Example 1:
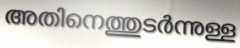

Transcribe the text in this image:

അതിനെത്തുടർന്നുള്ള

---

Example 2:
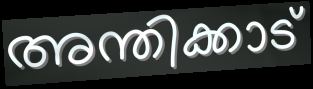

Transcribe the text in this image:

അന്തിക്കാട്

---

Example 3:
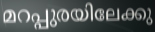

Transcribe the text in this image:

മറപ്പുരയിലേക്കു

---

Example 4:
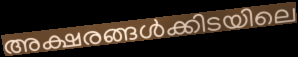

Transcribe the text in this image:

അക്ഷരങ്ങൾക്കിടയിലെ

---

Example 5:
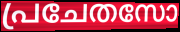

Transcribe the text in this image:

പ്രചേതസോ